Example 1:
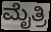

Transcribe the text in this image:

ಮೈತ್ರಿ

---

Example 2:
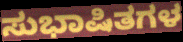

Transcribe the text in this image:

ಸುಭಾಷಿತಗಳ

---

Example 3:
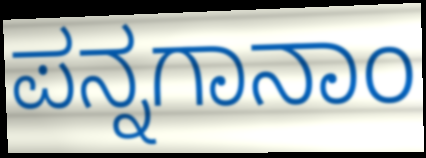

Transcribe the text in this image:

ಪನ್ನಗಾನಾಂ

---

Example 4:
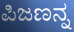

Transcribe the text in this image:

ಪಿಜಣನ್ನ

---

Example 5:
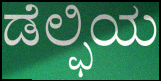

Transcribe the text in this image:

ಡೆಲ್ಫಿಯ